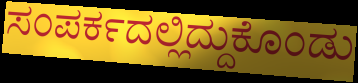
ಸಂಪರ್ಕದಲ್ಲಿದ್ದುಕೊಂಡು